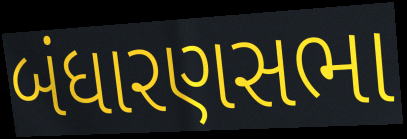
બંધારણસભા